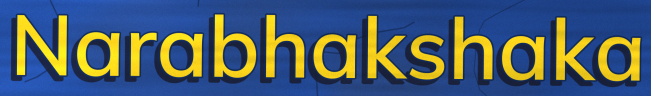
Narabhakshaka